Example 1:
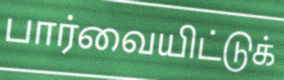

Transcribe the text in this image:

பார்வையிட்டுக்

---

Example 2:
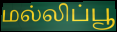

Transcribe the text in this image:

மல்லிப்பூ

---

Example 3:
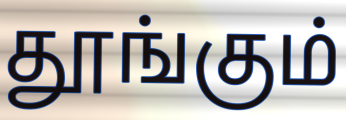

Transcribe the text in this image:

தூங்கும்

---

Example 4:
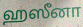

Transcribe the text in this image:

ஹஸீனா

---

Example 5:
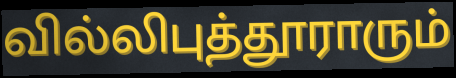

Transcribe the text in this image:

வில்லிபுத்தூராரும்